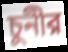
চুনীর